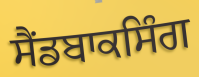
ਸੈਂਡਬਾਕਸਿੰਗ